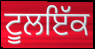
ਟੂਲਇੱਕ